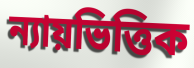
ন্যায়ভিত্তিক